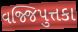
વજ્જિપુત્તકા